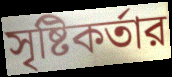
সৃষ্টিকর্তার